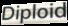
Diploid